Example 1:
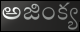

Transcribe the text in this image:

అజింక్య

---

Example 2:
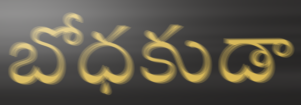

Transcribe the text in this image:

బోధకుడా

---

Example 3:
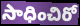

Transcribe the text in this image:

సాధించిరో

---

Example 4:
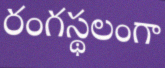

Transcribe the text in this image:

రంగస్థలంగా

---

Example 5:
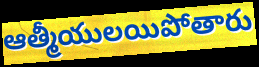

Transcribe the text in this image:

ఆత్మీయులయిపోతారు